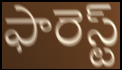
ఫారెస్ట్